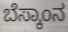
ಬೆಸ್ಕಾಂನ